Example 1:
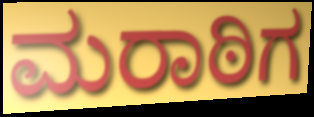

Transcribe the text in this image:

ಮರಾಠಿಗ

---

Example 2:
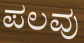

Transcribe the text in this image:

ಪಲವು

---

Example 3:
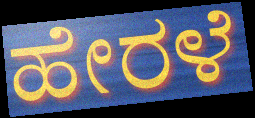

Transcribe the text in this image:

ಹೇರಳೆ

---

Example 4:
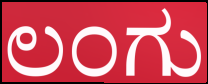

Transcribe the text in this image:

ಲಂಗು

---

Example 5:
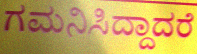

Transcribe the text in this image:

ಗಮನಿಸಿದ್ದಾದರೆ